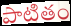
పాటితం